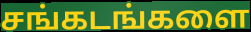
சங்கடங்களை